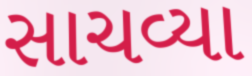
સાચવ્યા